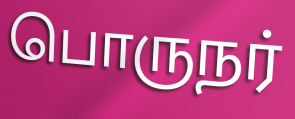
பொருநர்